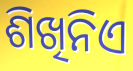
ଶିଖିନିଏ